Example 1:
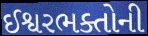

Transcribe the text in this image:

ઈશ્વરભક્તોની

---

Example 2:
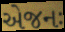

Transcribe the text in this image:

એજનઃ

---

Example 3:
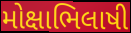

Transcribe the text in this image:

મોક્ષાભિલાષી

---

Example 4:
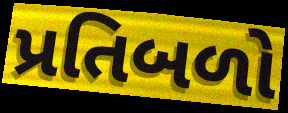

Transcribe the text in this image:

પ્રતિબળો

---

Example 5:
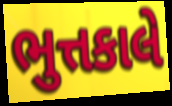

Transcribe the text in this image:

ભુત્તકાલે